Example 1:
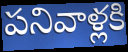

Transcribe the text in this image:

పనివాళ్లకి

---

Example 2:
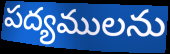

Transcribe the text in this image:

పద్యములను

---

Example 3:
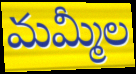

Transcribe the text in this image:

మమ్మీల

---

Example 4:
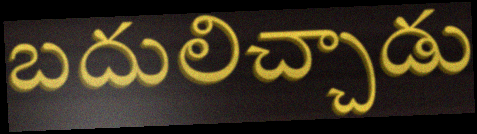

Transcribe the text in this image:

బదులిచ్చాడు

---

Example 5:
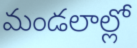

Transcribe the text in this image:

మండలాల్లో